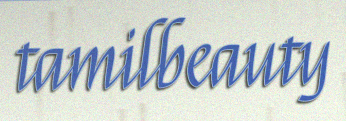
tamilbeauty